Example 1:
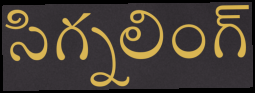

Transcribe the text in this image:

సిగ్నలింగ్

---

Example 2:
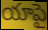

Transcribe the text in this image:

యాపై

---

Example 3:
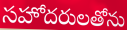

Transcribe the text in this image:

సహోదరులతోను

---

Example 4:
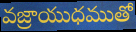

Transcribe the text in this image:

వజ్రాయుధముతో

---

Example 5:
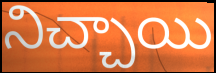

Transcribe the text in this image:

నిచ్చాయి